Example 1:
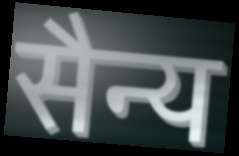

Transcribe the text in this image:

सैन्य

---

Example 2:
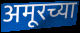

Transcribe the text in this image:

अमूरच्या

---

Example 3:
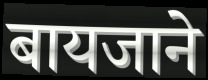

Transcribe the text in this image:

बायजाने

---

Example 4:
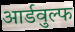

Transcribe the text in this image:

आर्डवुल्फ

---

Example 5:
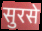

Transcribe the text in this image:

सुरसे